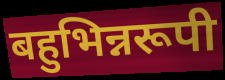
बहुभिन्नरूपी